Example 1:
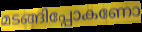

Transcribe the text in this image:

മടങ്ങിപ്പോകണോ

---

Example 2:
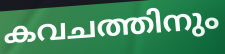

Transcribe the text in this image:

കവചത്തിനും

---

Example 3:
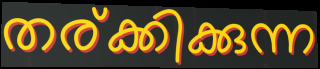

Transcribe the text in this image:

തര്ക്കിക്കുന്ന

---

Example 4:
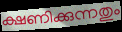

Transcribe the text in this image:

ക്ഷണിക്കുന്നതും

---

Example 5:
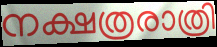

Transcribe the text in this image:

നക്ഷത്രരാത്രി